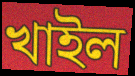
খাইল